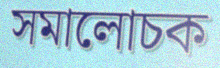
সমালোচক